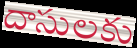
దాసులకు